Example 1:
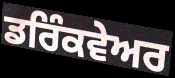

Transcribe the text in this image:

ਡਰਿੰਕਵੇਅਰ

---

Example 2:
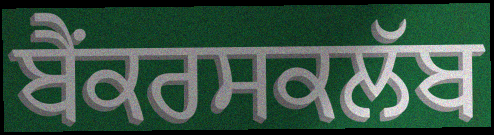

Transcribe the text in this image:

ਬੈਂਕਰਸਕਲੱਬ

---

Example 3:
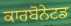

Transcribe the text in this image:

ਕਾਰਬੋਨੇਟਡ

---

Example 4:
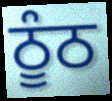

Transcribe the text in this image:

ਠੂੰਠ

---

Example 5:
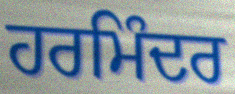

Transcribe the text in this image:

ਹਰਮਿੰਦਰ